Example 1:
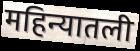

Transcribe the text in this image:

महिन्यातली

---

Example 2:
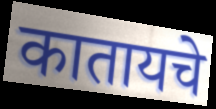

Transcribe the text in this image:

कातायचे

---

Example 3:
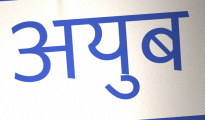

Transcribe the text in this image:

अयुब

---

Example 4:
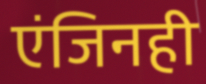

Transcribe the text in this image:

एंजिनही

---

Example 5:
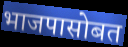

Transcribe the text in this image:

भाजपासोबत